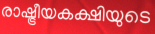
രാഷ്ട്രീയകക്ഷിയുടെ